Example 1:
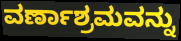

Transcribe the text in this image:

ವರ್ಣಾಶ್ರಮವನ್ನು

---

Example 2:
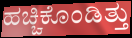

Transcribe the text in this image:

ಹಚ್ಚಿಕೊಂಡಿತ್ತು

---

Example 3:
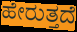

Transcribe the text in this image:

ಹೇರುತ್ತದೆ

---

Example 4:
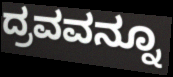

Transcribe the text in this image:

ದ್ರವವನ್ನೂ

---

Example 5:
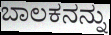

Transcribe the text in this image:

ಬಾಲಕನನ್ನು